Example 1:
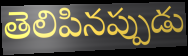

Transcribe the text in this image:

తెలిపినప్పుడు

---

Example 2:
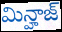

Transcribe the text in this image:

మిన్హాజ్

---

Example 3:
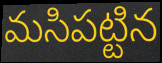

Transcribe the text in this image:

మసిపట్టిన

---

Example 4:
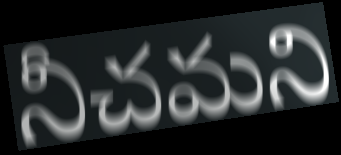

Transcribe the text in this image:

నీచమని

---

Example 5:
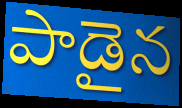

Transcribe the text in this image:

పాడైన